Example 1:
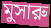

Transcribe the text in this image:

মুসারু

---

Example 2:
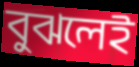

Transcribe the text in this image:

বুঝলেই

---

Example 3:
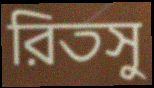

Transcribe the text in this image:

রিতসু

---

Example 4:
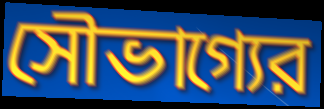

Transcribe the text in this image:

সৌভাগ্যের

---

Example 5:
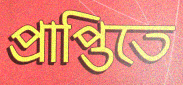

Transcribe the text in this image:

প্রাপ্তিতে